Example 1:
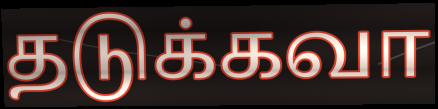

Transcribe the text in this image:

தடுக்கவா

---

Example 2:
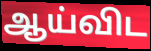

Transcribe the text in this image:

ஆய்விட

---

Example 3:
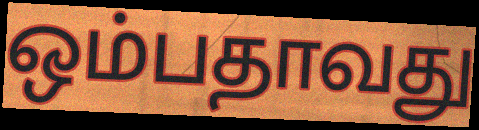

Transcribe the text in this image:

ஒம்பதாவது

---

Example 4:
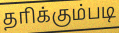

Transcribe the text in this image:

தரிக்கும்படி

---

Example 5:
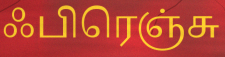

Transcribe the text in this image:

ஃபிரெஞ்சு